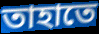
তাহাতে